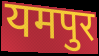
यमपुर